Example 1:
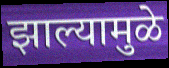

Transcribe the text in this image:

झाल्यामुळे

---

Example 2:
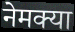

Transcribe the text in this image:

नेमक्या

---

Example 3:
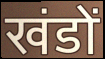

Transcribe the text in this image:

खंडों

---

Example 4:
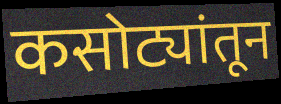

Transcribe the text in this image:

कसोट्यांतून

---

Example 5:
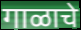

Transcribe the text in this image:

गाळाचे